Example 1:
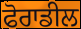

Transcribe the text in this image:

ਫੋਰਾਡੀਲ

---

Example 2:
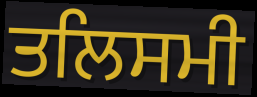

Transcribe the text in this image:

ਤਲਿਸਮੀ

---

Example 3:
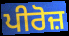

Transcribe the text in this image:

ਪੀਰੋਜ਼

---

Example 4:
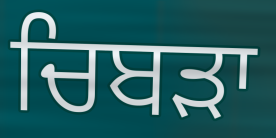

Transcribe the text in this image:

ਚਿਬੜਾ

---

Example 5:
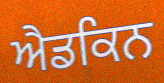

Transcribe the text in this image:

ਐਡਕਿਨ